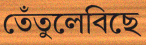
তেঁতুলেবিছে